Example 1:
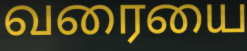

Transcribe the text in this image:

வரையை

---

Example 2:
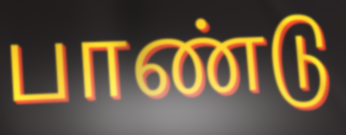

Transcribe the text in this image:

பாண்டு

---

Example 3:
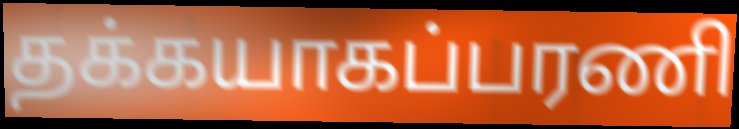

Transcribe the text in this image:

தக்கயாகப்பரணி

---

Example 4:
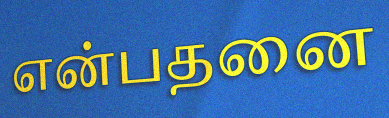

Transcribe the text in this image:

என்பதனை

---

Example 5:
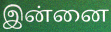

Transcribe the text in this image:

இன்னை